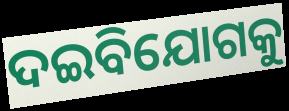
ଦଇବିଯୋଗକୁ